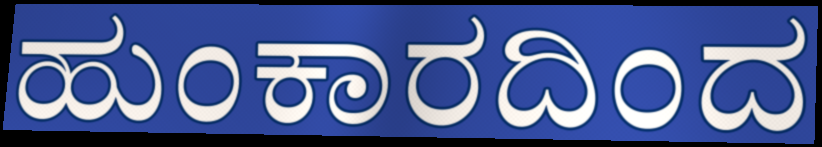
ಹುಂಕಾರದಿಂದ